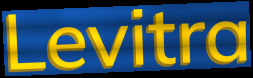
Levitra